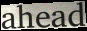
ahead